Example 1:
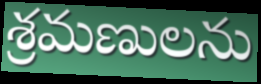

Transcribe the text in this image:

శ్రమణులను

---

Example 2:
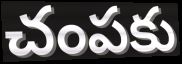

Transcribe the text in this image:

చంపకు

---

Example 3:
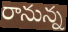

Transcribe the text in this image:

రానున్న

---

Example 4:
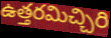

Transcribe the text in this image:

ఉత్తరమిచ్చిరి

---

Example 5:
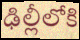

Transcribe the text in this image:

ఢిల్లీలోకి